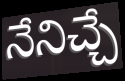
నేనిచ్చే